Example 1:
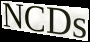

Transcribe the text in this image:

NCDs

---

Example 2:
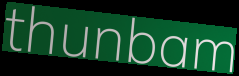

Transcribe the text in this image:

thunbam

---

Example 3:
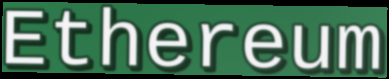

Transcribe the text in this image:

Ethereum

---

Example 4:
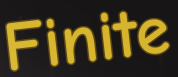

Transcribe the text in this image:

Finite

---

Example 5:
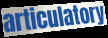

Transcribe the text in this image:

articulatory